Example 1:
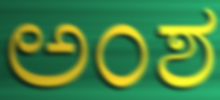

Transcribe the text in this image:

ಅಂಶ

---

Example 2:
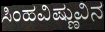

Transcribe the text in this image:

ಸಿಂಹವಿಷ್ಣುವಿನ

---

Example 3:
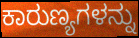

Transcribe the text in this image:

ಕಾರುಣ್ಯಗಳನ್ನು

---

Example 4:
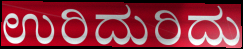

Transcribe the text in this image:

ಉರಿದುರಿದು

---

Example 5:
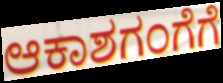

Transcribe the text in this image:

ಆಕಾಶಗಂಗೆಗೆ